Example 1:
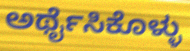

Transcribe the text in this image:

ಅರ್ಥೈಸಿಕೊಳ್ಳು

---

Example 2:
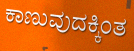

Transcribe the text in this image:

ಕಾಣುವುದಕ್ಕಿಂತ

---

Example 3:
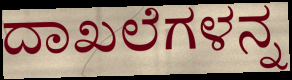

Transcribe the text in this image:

ದಾಖಲೆಗಳನ್ನ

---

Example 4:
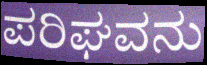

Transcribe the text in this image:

ಪರಿಘವನು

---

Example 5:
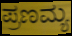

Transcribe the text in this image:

ಪ್ರಣಮ್ಯ